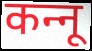
कन्नू